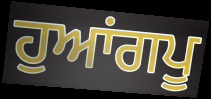
ਹੁਆਂਗਪੂ